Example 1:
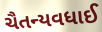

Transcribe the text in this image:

ચૈતન્યવધાઈ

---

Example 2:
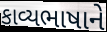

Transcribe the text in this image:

કાવ્યભાષાને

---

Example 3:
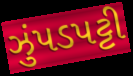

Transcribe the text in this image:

ઝુંપડપટ્ટી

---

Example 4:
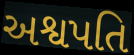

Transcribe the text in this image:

અશ્વપતિ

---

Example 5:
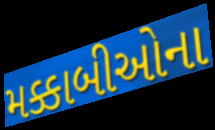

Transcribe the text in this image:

મક્કાબીઓના